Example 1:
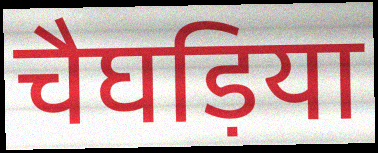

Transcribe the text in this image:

चैघड़िया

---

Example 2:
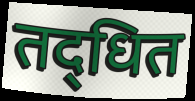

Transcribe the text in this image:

तद्धित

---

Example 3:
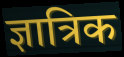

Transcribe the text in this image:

ज्ञात्रिक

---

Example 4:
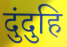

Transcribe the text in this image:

दुंदुहि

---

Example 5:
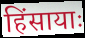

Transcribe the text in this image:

हिंसायाः